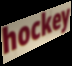
hockey